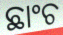
ଛାଂଚ